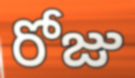
రోజు